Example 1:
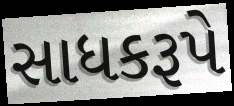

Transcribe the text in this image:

સાધકરૂપે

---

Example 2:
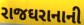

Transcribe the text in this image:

રાજઘરાનાની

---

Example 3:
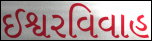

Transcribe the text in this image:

ઈશ્વરવિવાહ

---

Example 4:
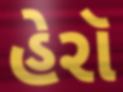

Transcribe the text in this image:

હેરૉ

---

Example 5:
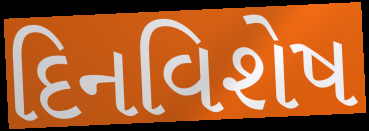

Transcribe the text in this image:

દિનવિશેષ